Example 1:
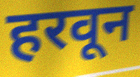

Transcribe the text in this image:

हरवून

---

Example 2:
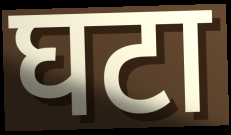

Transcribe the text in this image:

घटा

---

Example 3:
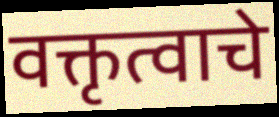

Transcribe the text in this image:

वक्तृत्वाचे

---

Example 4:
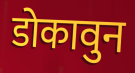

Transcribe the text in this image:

डोकावुन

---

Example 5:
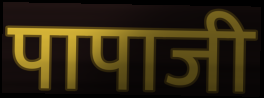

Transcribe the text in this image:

पापाजी